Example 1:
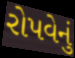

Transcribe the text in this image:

રોપવેનું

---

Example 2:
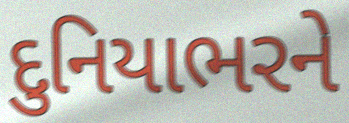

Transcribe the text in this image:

દુનિયાભરને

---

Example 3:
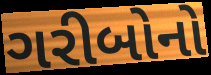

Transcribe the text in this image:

ગરીબોનો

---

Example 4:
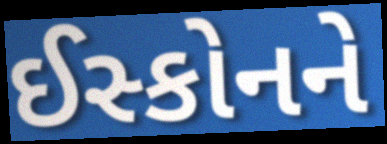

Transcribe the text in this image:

ઈસ્કોનને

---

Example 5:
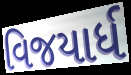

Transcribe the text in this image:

વિજયાર્ધ